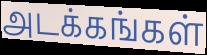
அடக்கங்கள்